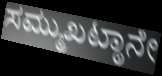
ಸಮ್ಮುಖಟ್ಠಾನೇ